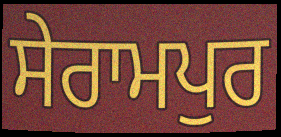
ਸੇਰਾਮਪੁਰ